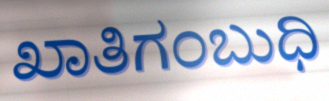
ಖಾತಿಗಂಬುಧಿ